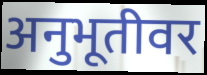
अनुभूतीवर